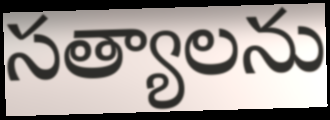
సత్యాలను